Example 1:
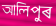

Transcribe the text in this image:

আলিপুৰ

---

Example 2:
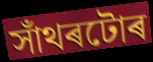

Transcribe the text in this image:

সাঁথৰটোৰ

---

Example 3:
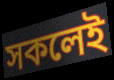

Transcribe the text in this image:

সকলেই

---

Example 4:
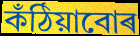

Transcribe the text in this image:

কঁঠিয়াবোৰ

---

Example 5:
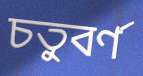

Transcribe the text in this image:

চতুবৰ্ণ